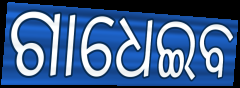
ଗାଧେଇବ